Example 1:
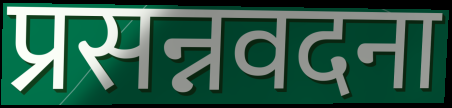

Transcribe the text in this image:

प्रसन्नवदना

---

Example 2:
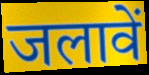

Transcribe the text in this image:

जलावें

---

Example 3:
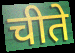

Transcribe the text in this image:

चीते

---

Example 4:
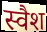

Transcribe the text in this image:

स्वैश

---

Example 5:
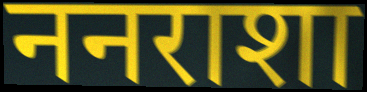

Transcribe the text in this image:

ननराशा